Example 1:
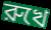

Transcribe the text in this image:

রুখে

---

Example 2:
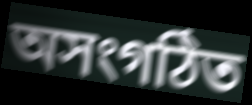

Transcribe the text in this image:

অসংগঠিত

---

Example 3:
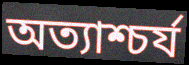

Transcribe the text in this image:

অত্যাশ্চর্য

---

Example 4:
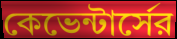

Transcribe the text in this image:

কেভেন্টার্সের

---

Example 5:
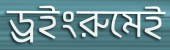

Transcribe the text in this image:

ড্রইংরুমেই